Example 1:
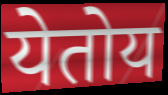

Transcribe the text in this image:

येतोय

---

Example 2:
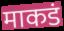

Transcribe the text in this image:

माकडं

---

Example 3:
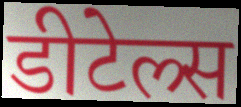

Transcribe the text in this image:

डीटेल्स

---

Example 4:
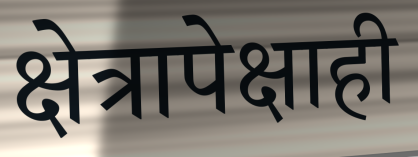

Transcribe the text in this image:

क्षेत्रापेक्षाही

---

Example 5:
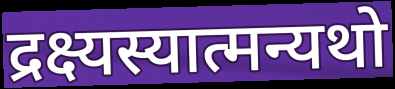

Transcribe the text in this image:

द्रक्ष्यस्यात्मन्यथो